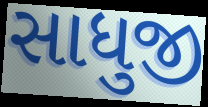
સાધુજી